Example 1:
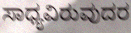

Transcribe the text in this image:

ಸಾಧ್ಯವಿರುವುದರ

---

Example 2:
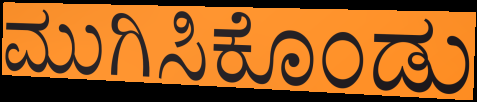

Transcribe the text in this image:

ಮುಗಿಸಿಕೊಂಡು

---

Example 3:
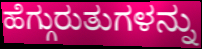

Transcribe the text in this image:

ಹೆಗ್ಗುರುತುಗಳನ್ನು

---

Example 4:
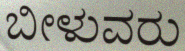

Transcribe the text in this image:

ಬೀಳುವರು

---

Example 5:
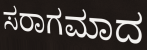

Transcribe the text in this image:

ಸರಾಗಮಾದ